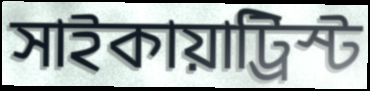
সাইকায়াট্রিস্ট